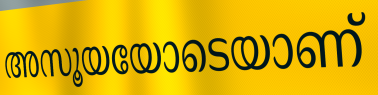
അസൂയയോടെയാണ്